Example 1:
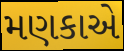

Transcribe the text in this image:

મણકાએ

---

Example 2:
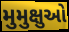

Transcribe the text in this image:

મુમુક્ષુઓ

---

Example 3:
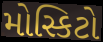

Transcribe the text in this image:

મોસ્કિટો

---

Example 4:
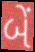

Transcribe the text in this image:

બેં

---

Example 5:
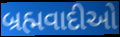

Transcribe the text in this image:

બ્રહ્મવાદીઓ